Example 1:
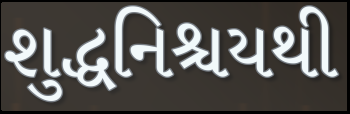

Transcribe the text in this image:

શુદ્ધનિશ્ચયથી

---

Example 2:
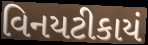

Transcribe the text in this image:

વિનયટીકાયં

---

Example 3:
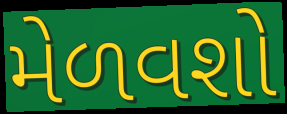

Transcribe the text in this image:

મેળવશો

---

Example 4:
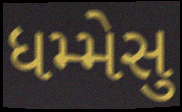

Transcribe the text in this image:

ધમ્મેસુ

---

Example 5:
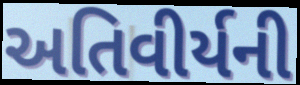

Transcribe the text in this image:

અતિવીર્યની